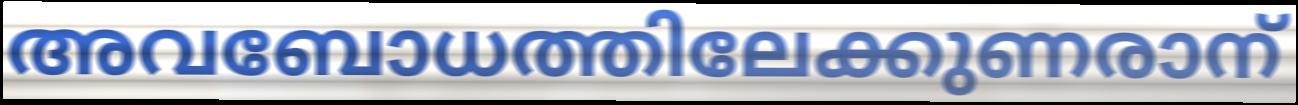
അവബോധത്തിലേക്കുണരാന്